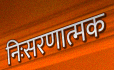
निःसरणात्मक